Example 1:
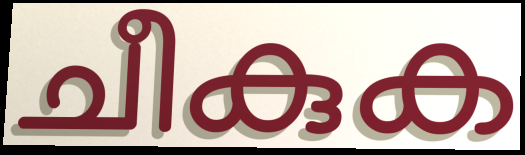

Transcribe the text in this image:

ചീകുക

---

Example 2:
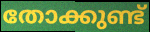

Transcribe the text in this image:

തോക്കുണ്ട്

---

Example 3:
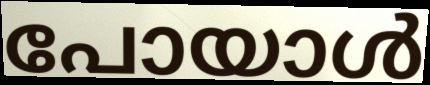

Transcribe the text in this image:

പോയാൾ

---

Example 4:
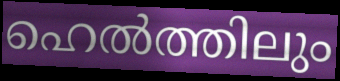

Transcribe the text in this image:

ഹെൽത്തിലും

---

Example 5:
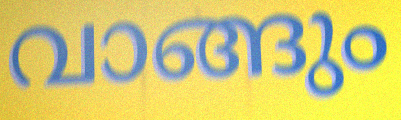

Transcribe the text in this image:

വാങ്ങും